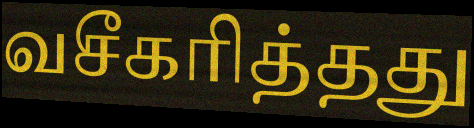
வசீகரித்தது